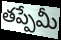
తప్పేమీ